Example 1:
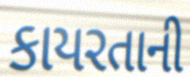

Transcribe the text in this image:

કાયરતાની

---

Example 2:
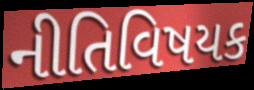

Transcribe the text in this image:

નીતિવિષયક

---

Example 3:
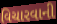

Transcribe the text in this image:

વિચારવાની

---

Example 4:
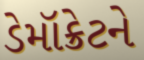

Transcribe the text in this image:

ડેમૉક્રેટને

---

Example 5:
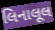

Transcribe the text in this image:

લિનાલૂલ